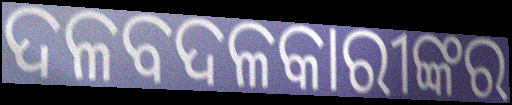
ଦଳବଦଳକାରୀଙ୍କର